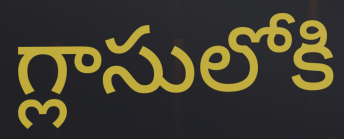
గ్లాసులోకి